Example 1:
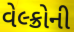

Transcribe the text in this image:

વેલ્ક્રોની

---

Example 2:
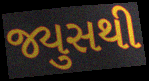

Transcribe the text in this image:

જ્યુસથી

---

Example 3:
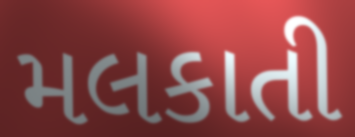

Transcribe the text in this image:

મલકાતી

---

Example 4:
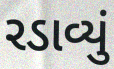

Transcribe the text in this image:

રડાવ્યું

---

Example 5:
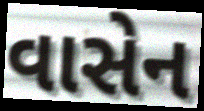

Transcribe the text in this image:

વાસેન